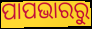
ପାପଭାରରୁ